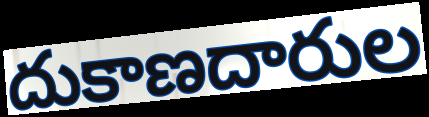
దుకాణదారుల